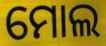
ମୋଲ